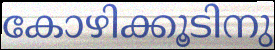
കോഴിക്കൂടിനു